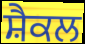
ਸ਼ੈਕਲ